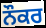
ਨੌਕਰ